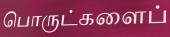
பொருட்களைப்